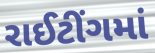
રાઈટીંગમાં